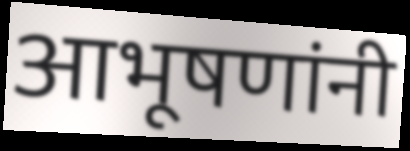
आभूषणांनी